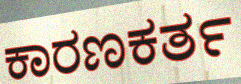
ಕಾರಣಕರ್ತ